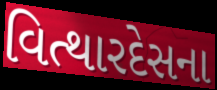
વિત્થારદેસના